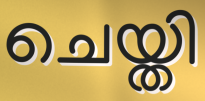
ചെയ്തി